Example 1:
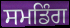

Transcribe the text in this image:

ਸਮਡਿੰਗ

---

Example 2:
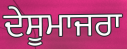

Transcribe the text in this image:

ਦੇਸੂਮਾਜਰਾ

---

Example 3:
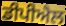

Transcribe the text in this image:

ਡੀਪੀਐਲ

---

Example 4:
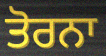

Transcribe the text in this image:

ਤੋਰਨਾ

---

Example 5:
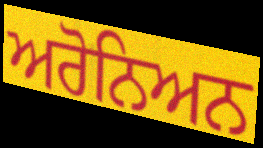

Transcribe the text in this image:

ਅਰੋਨਿਅਨ